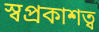
স্বপ্রকাশত্ব